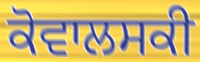
ਕੋਵਾਲਸਕੀ